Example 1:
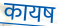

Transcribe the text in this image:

कायष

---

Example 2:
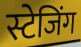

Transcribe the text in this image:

स्टेजिंग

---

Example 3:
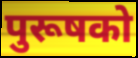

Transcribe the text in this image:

पुरूषको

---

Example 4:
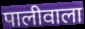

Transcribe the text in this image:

पालीवाला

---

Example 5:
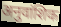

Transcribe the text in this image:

अनुवांशिक